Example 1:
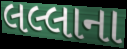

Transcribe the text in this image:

લલ્લાના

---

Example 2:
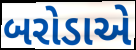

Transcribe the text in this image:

બરોડાએ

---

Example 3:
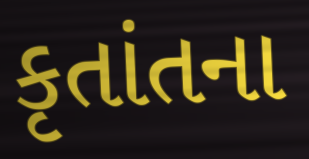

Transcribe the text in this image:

કૃતાંતના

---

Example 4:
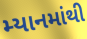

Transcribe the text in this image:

મ્યાનમાંથી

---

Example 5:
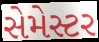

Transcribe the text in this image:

સેમેસ્ટર